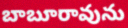
బాబూరావును